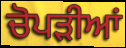
ਚੋਪੜੀਆਂ